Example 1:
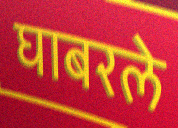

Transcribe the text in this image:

घाबरले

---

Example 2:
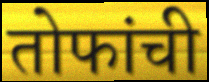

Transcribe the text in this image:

तोफांची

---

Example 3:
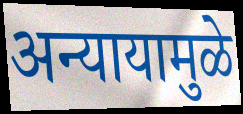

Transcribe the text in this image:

अन्यायामुळे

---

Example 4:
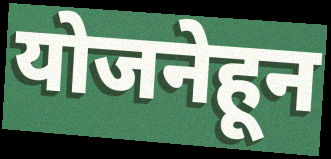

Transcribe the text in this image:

योजनेहून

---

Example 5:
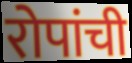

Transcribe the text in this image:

रोपांची